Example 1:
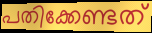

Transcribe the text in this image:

പതിക്കേണ്ടത്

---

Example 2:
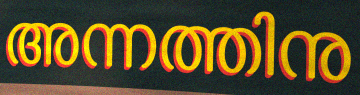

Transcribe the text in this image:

അന്നത്തിനു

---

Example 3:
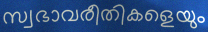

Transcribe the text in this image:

സ്വഭാവരീതികളെയും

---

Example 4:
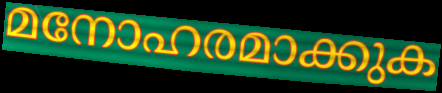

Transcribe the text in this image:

മനോഹരമാക്കുക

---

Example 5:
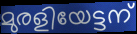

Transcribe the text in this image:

മുരളിയേട്ടന്